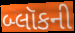
બ્લૉકની